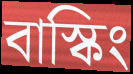
বাস্কিং